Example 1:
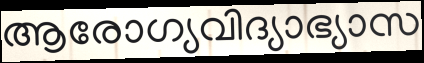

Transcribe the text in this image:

ആരോഗ്യവിദ്യാഭ്യാസ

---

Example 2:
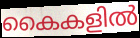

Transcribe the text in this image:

കൈകളിൽ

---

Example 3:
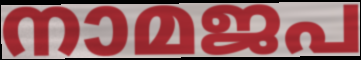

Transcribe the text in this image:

നാമജപ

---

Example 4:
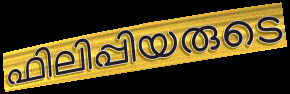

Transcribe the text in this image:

ഫിലിപ്പിയരുടെ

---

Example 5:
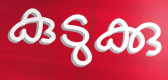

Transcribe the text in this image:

കുടുക്കു